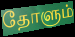
தோளும்